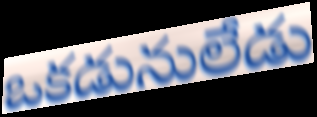
ఒకడునులేడు